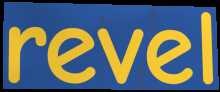
revel